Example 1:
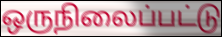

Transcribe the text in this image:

ஒருநிலைப்பட்டு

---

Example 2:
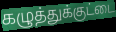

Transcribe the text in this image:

கழுத்துக்குட்டை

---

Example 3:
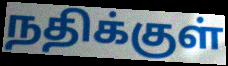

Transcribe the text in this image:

நதிக்குள்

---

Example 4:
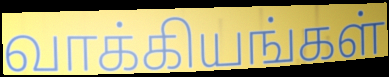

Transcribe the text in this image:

வாக்கியங்கள்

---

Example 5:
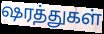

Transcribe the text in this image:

ஷரத்துகள்